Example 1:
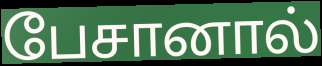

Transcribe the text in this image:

பேசானால்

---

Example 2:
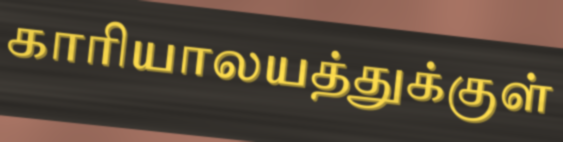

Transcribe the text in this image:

காரியாலயத்துக்குள்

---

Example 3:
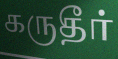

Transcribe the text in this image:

கருதீர்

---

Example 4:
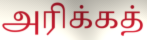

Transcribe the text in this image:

அரிக்கத்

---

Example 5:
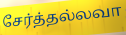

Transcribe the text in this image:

சேர்த்தல்லவா